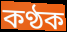
কণ্ঠক